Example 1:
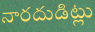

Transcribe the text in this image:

నారదుడిట్లు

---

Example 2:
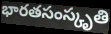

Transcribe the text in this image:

భారతసంస్కృతి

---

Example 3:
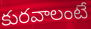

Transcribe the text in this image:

కురవాలంటే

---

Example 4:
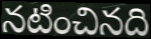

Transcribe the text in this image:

నటించినది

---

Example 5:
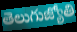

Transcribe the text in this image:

తెలుగుజ్యోతి